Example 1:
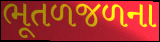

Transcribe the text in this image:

ભૂતળજળના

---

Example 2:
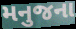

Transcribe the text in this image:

મનુજના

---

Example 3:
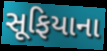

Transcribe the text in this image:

સૂફિયાના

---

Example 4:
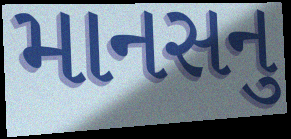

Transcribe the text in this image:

માનસનુ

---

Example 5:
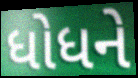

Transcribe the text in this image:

ધોધને